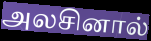
அலசினால்